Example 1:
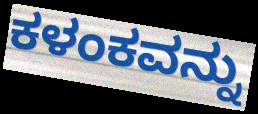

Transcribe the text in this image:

ಕಳಂಕವನ್ನು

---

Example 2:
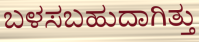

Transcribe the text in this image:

ಬಳಸಬಹುದಾಗಿತ್ತು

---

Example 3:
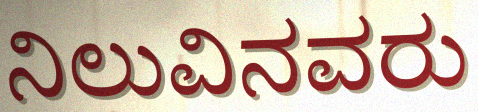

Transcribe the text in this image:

ನಿಲುವಿನವರು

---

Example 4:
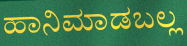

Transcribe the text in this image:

ಹಾನಿಮಾಡಬಲ್ಲ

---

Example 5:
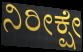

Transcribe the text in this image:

ನಿರೀಕ್ಷೇ